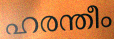
ഹരന്തീം